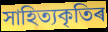
সাহিত্য়কৃতিৰ